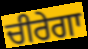
ਚੀਰੇਗਾ